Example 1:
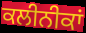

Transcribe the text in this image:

ਕਲੀਨੀਕਾਂ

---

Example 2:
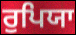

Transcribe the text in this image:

ਰੁਪਿਯਾ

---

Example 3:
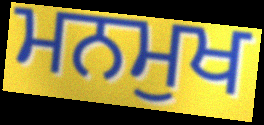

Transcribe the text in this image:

ਮਨਮੁਖ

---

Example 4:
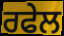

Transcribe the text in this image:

ਰਫੇਲ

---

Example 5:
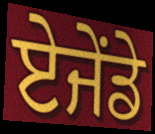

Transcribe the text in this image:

ਏਜੇਂਡੇ